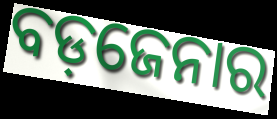
ବଡ଼ଜେନାର